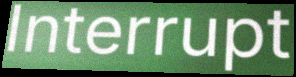
Interrupt